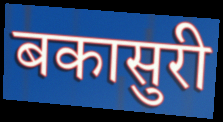
बकासुरी